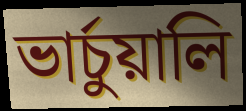
ভার্চুয়ালি